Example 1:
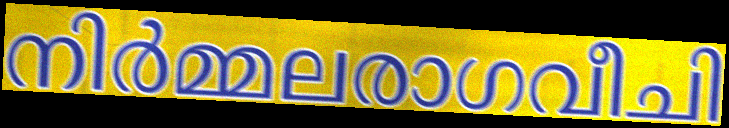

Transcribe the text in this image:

നിർമ്മലരാഗവീചി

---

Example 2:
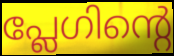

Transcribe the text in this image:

പ്ലേഗിന്റെ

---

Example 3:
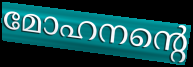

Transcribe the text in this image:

മോഹനന്റെ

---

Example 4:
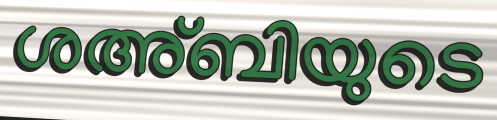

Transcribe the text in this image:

ശഅ്ബിയുടെ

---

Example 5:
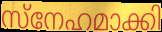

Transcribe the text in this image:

സ്നേഹമാക്കി